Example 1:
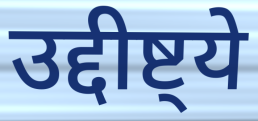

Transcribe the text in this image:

उद्दीष्ट्ये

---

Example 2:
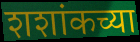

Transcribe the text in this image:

शशांकच्या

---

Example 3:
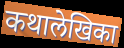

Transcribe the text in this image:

कथालेखिका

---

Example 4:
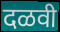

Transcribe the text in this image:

दळवी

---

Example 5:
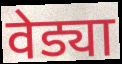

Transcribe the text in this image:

वेड्या